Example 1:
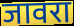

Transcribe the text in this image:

जावरा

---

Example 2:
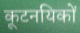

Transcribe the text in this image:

कूटनयिकों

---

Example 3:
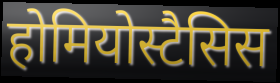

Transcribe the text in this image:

होमियोस्टैसिस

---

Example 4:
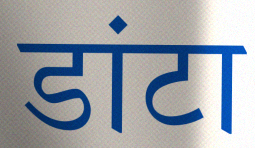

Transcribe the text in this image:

डांटा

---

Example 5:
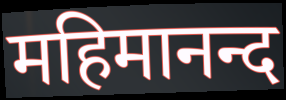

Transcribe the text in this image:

महिमानन्द